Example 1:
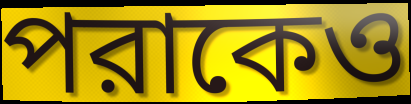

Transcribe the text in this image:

পরাকেও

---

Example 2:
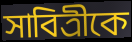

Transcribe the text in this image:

সাবিত্রীকে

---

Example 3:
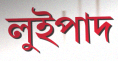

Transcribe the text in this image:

লুইপাদ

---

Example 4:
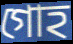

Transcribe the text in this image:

গোহ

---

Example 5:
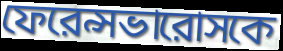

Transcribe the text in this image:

ফেরেন্সভারোসকে